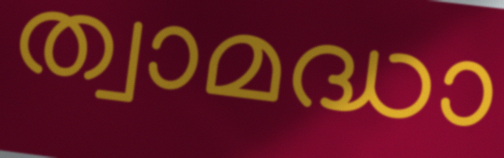
ത്വാമദ്ധാ